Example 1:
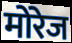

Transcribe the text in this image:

मोरेज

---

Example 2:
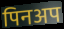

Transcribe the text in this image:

पिनअप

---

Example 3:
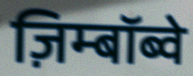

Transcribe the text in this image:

ज़िम्बॉब्वे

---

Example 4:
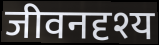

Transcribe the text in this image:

जीवनदृश्य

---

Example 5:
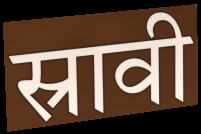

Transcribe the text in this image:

स्रावी